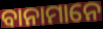
ବାନାମାନେ